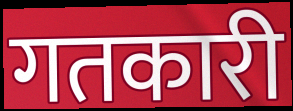
गतकारी